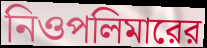
নিওপলিমারের